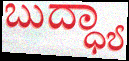
ಬುದ್ಧ್ಯಾ